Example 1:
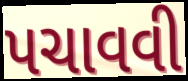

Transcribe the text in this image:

પચાવવી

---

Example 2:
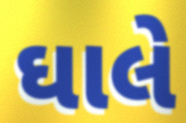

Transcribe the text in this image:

ઘાલે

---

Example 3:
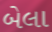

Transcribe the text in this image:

બેલા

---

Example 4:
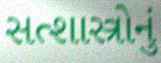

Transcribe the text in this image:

સત્શાસ્ત્રોનું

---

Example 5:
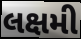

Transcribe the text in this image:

લક્ષમી